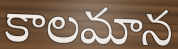
కాలమాన